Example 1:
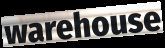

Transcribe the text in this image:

warehouse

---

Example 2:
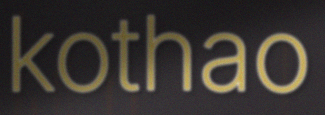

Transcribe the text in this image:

kothao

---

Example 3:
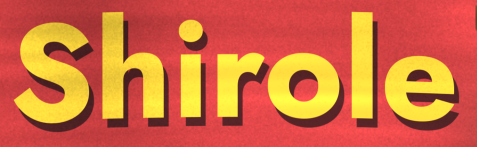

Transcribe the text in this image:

Shirole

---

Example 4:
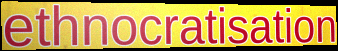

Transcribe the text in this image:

ethnocratisation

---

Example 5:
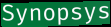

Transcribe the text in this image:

Synopsys